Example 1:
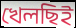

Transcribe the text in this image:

খেলছিই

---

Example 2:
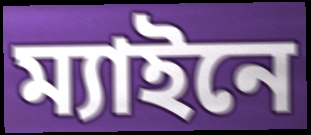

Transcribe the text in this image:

ম্যাইনে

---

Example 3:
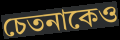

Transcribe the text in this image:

চেতনাকেও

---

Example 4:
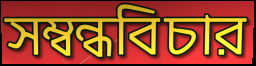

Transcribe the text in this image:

সম্বন্ধবিচার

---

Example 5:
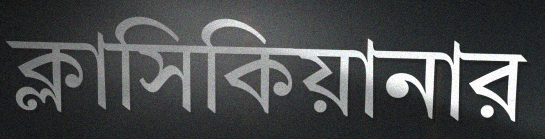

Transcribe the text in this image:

ক্লাসিকিয়ানার